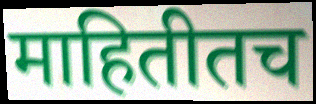
माहितीतच